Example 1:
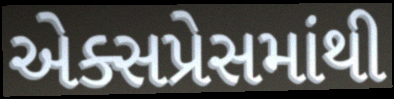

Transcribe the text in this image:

એક્સપ્રેસમાંથી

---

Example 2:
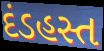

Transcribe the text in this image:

દંડહસ્ત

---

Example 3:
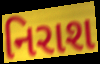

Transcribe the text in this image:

નિરાશ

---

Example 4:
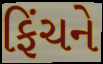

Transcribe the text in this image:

ફિંચને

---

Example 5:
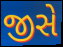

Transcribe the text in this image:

જીસે